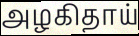
அழகிதாய்